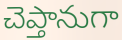
చెప్తానుగా